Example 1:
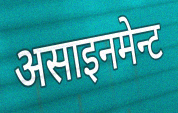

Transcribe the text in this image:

असाइनमेन्ट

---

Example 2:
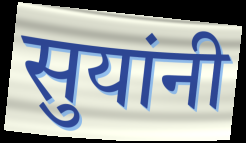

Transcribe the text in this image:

सुयांनी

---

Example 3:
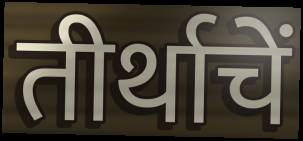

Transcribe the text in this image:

तीर्थाचें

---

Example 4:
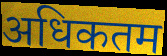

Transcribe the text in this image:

अधिकतम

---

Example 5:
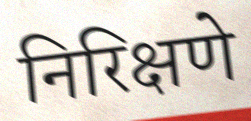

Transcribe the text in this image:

निरिक्षणे